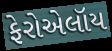
ફેરોએલૉય